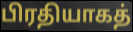
பிரதியாகத்